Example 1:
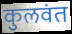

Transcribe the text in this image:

कुलवंत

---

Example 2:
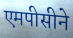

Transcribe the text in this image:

एमपीसीने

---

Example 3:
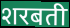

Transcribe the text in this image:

शरबती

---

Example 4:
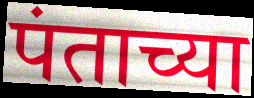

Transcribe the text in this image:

पंताच्या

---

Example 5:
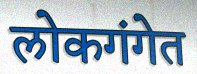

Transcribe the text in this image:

लोकगंगेत